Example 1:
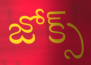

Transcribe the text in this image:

జోక్స్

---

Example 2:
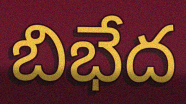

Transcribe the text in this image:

బిభేద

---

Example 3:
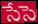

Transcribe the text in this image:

సేసె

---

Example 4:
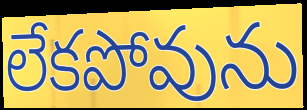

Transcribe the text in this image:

లేకపోవును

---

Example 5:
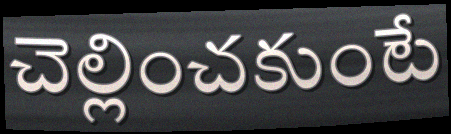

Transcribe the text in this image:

చెల్లించకుంటే